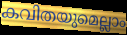
കവിതയുമെല്ലാം